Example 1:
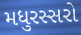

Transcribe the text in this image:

મધુરસ્સરો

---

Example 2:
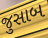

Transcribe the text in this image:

જુસાબ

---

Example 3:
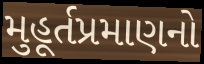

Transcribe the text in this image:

મુહૂર્તપ્રમાણનો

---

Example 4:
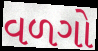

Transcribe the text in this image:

વળગો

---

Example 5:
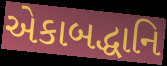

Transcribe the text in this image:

એકાબદ્ધાનિ